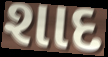
શાદ